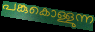
പങ്കുകൊള്ളുന്ന